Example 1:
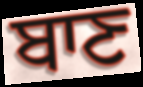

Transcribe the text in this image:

ਬਾਣ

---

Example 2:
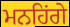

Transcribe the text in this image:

ਮਨਹਿਂਗੇ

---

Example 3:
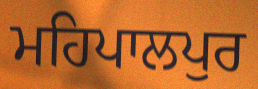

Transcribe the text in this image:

ਮਹਿਪਾਲਪੁਰ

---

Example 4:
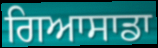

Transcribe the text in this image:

ਗਿਆਸਾਡਾ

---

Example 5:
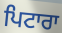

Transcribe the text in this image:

ਪਿਟਾਰਾ